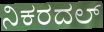
ನಿಕರದಲ್